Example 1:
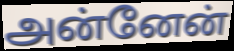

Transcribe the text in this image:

அன்னேன்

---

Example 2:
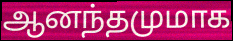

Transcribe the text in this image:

ஆனந்தமுமாக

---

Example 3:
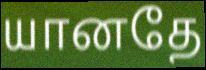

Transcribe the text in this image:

யானதே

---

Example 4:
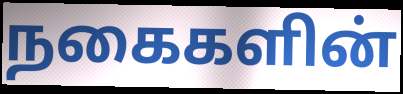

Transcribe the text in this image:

நகைகளின்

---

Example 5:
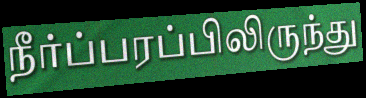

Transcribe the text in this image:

நீர்ப்பரப்பிலிருந்து